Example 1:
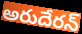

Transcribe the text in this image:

అరుదేరన్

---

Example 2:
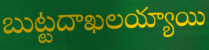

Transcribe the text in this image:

బుట్టదాఖలయ్యాయి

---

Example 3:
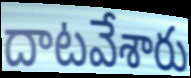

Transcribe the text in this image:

దాటవేశారు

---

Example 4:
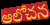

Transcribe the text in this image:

ఆలోచన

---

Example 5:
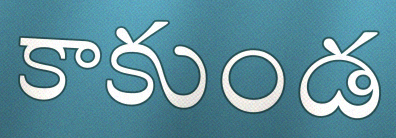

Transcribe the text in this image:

కాకుండ